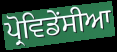
ਪ੍ਰੋਵਿਡੇਂਸੀਆ